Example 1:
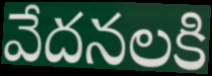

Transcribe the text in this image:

వేదనలకి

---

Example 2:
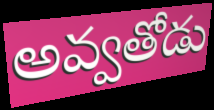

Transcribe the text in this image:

అవ్వతోడు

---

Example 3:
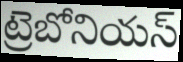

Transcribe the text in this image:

ట్రెబోనియస్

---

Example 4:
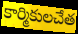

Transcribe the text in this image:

కార్మికులచేత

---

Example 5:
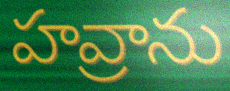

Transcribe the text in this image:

హవ్రాను